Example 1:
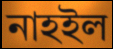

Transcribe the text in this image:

নাহইল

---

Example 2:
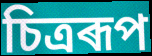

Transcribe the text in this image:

চিত্ৰৰূপ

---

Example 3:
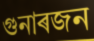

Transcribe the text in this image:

গুনাৰজন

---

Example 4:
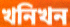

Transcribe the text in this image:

খনিখন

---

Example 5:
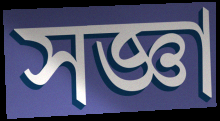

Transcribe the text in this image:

সজ্ঞা